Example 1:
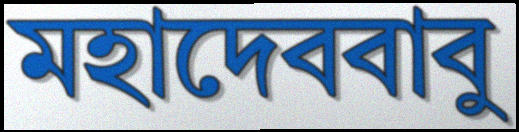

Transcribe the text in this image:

মহাদেববাবু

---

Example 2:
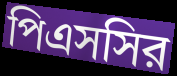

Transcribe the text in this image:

পিএসসির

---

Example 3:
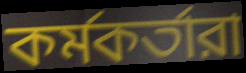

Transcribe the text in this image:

কর্মকর্তারা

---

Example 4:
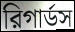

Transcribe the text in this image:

রিগার্ডস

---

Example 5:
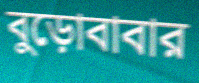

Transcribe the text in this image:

বুড়োবাবার